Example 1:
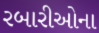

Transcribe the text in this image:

રબારીઓના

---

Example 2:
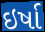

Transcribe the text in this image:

ઇર્ષા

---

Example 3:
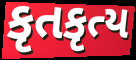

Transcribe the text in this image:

કૃતકૃત્ય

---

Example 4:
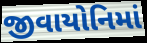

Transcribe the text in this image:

જીવાયોનિમાં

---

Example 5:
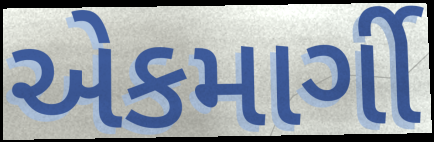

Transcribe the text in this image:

એકમાર્ગી